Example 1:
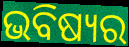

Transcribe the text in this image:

ଭବିଷ୍ୟର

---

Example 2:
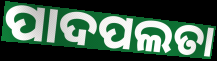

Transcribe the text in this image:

ପାଦପଲତା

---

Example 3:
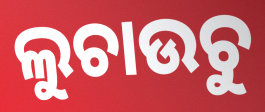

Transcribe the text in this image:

ଲୁଚାଉଚୁ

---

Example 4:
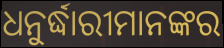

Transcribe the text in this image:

ଧନୁର୍ଦ୍ଧାରୀମାନଙ୍କର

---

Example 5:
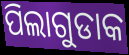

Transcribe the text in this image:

ପିଲାଗୁଡାକ